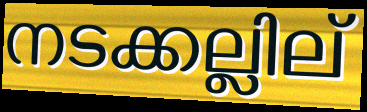
നടക്കല്ലില്